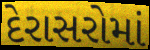
દેરાસરોમાં